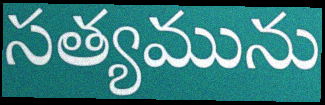
సత్యమును